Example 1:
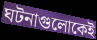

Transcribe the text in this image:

ঘটনাগুলোকেই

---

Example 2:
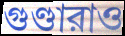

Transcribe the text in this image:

গুণ্ডারাও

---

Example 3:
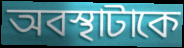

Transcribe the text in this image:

অবস্থাটাকে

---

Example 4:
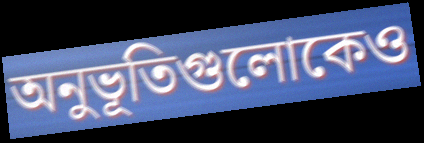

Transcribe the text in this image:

অনুভূতিগুলোকেও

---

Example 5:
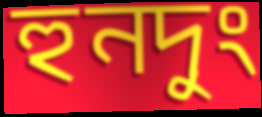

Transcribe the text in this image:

হুনদুং